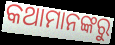
କଥାମାନଙ୍କରୁ